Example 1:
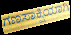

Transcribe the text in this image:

ಗಣಸಾಕ್ಷಿಯಾಗಿ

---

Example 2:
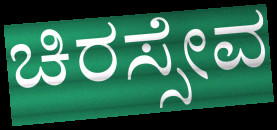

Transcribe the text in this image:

ಚಿರಸ್ಸೇವ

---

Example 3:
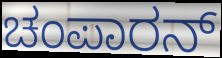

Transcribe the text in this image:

ಚಂಪಾರನ್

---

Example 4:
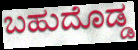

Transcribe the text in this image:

ಬಹುದೊಡ್ಡ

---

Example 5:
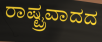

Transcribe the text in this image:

ರಾಷ್ಟ್ರವಾದದ